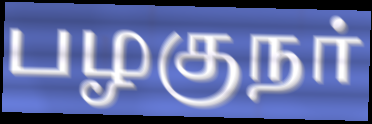
பழகுநர்